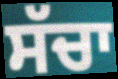
ਸੱਚਾ